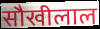
सौखीलाल